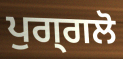
ਪੁਗ੍ਗਲੋ